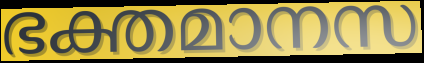
ഭക്തമാനസ